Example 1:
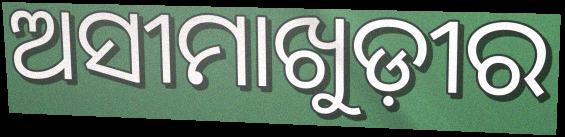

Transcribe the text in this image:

ଅସୀମାଖୁଡ଼ୀର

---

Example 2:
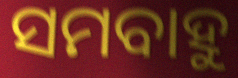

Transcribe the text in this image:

ସମବାହୁ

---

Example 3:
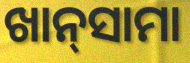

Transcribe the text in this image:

ଖାନ୍‌ସାମା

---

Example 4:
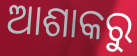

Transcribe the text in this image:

ଆଶାକରୁ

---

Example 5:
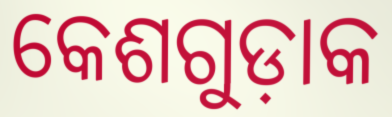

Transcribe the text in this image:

କେଶଗୁଡ଼ାକ